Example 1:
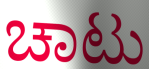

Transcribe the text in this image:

ಚಾಟು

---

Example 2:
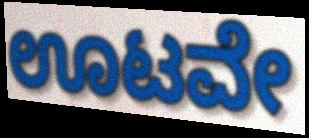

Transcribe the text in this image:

ಊಟವೇ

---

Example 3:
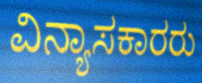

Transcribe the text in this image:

ವಿನ್ಯಾಸಕಾರರು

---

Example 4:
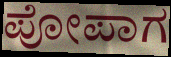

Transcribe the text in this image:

ಪೋಪಾಗ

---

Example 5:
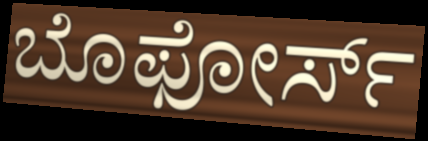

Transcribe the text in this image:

ಬೊಫೋರ್ಸ್